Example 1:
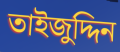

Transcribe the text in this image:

তাইজুদ্দিন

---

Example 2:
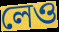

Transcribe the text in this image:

লেও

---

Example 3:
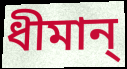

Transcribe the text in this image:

ধীমান্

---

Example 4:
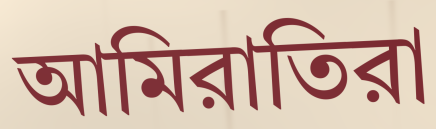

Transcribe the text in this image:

আমিরাতিরা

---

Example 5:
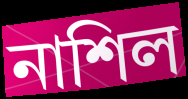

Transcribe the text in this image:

নাশিল